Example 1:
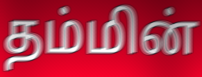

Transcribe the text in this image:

தம்மின்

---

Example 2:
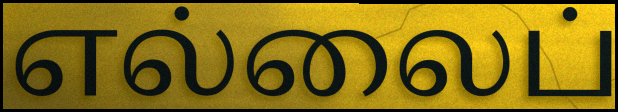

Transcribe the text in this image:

எல்லைப்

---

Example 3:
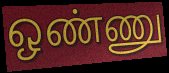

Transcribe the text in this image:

ஒண்ணு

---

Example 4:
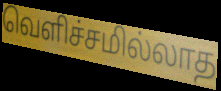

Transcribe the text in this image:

வெளிச்சமில்லாத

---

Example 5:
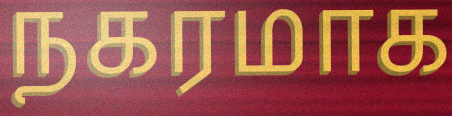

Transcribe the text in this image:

நகரமாக